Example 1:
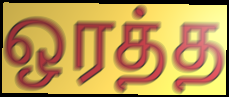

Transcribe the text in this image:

ஒரத்த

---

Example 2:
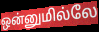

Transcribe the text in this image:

ஒன்னுமில்லே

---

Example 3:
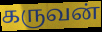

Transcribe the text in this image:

கருவன்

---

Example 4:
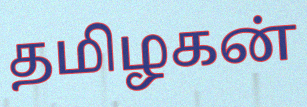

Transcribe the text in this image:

தமிழகன்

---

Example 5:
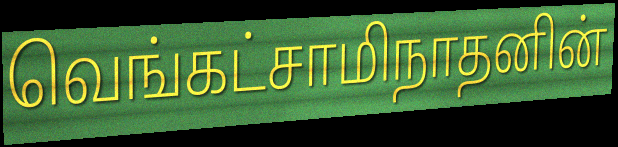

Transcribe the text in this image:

வெங்கட்சாமிநாதனின்